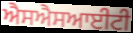
ਐਸਐਸਆਈਟੀ